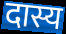
दास्य